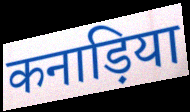
कनाड़िया